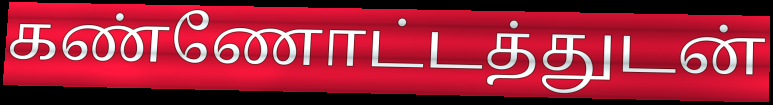
கண்ணோட்டத்துடன்